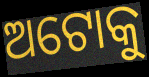
ଅଟୋକୁ